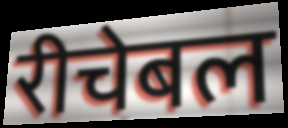
रीचेबल